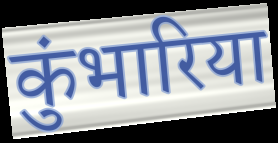
कुंभारिया